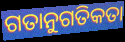
ଗତାନୁଗତିକତା